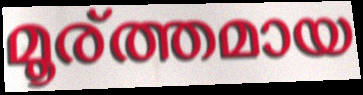
മൂര്ത്തമായ